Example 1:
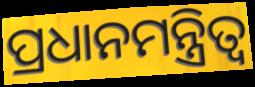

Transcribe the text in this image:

ପ୍ରଧାନମନ୍ତ୍ରିତ୍ଵ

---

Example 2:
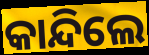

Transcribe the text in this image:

କାନ୍ଦିଲେ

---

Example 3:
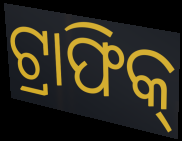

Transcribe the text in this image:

ଟ୍ରାଫିକ୍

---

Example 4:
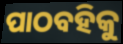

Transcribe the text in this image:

ପାଠବହିକୁ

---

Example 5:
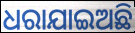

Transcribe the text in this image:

ଧରାଯାଇଅଛି